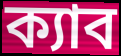
ক্যাব